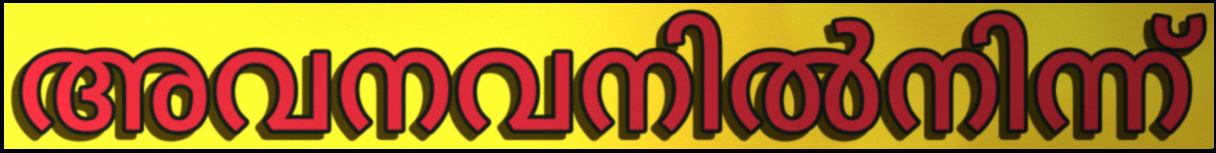
അവനവനിൽനിന്ന്